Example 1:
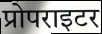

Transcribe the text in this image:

प्रोपराइटर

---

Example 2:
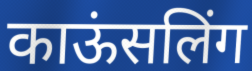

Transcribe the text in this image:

काऊंसलिंग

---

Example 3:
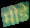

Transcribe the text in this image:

मीडे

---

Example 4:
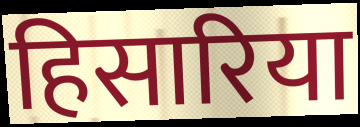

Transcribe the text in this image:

हिसारिया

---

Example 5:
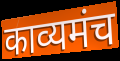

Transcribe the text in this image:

काव्यमंच